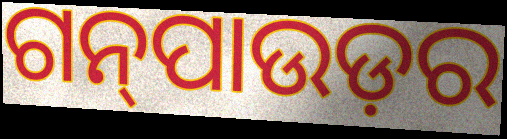
ଗନ୍‍ପାଉଡ଼ର